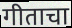
गीताचा